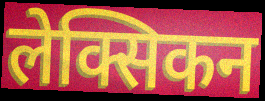
लेक्सिकन